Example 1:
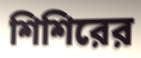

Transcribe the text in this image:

শিশিরের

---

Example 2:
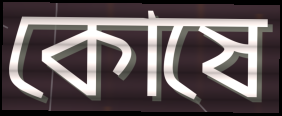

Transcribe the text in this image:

কোষে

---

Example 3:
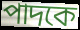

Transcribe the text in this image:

পাদকে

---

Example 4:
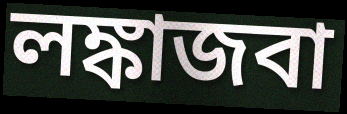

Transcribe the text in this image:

লঙ্কাজবা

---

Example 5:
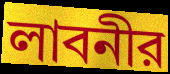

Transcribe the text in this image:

লাবনীর